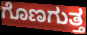
ಗೊಣಗುತ್ತ